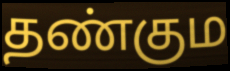
தண்கும